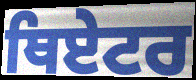
ਥਿਏਟਰ